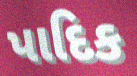
પાદિક